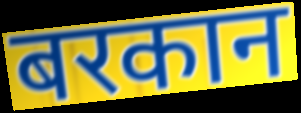
बरकान